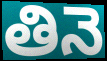
తినె